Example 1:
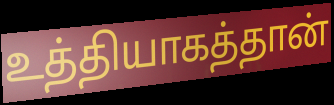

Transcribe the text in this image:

உத்தியாகத்தான்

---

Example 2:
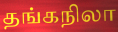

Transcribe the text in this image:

தங்கநிலா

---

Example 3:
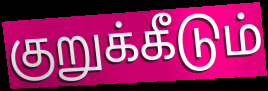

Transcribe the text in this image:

குறுக்கீடும்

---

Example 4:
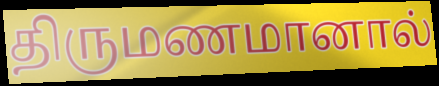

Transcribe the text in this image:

திருமணமானால்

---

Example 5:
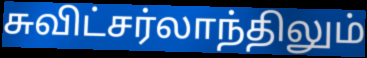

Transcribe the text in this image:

சுவிட்சர்லாந்திலும்